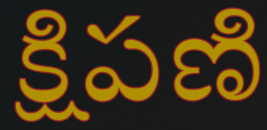
క్షిపణి